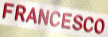
FRANCESCO